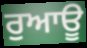
ਰੁਆਊ